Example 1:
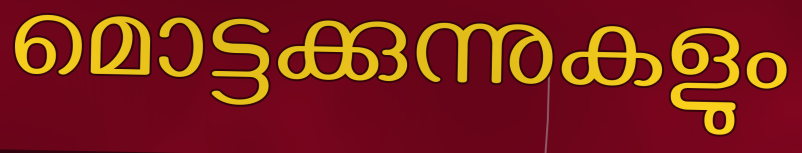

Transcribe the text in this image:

മൊട്ടക്കുന്നുകളും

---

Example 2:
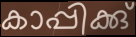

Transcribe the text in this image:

കാപ്പിക്കു്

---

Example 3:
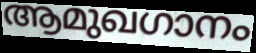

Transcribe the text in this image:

ആമുഖഗാനം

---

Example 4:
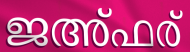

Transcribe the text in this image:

ജഅ്ഫര്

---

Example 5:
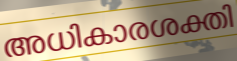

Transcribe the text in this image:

അധികാരശക്തി